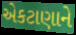
એકટાણાને